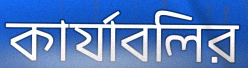
কার্যাবলির